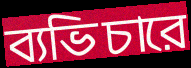
ব্যভিচারে